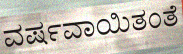
ವರ್ಷವಾಯಿತಂತೆ